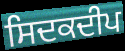
ਸਿਦਕਦੀਪ